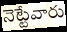
నెట్టేవారు